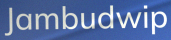
Jambudwip